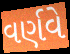
વર્ણવે